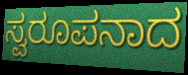
ಸ್ವರೂಪನಾದ